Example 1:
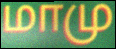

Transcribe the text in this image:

மாமு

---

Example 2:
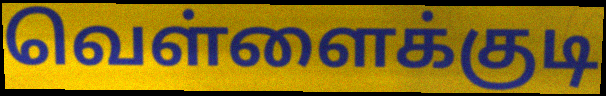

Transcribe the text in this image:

வெள்ளைக்குடி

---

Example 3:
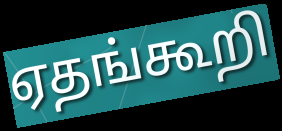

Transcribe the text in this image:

ஏதங்கூறி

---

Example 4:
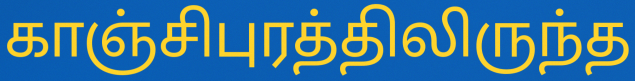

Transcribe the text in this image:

காஞ்சிபுரத்திலிருந்த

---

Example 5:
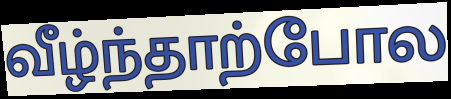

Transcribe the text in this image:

வீழ்ந்தாற்போல